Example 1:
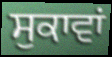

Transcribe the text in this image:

ਸੁਕਾਵਾਂ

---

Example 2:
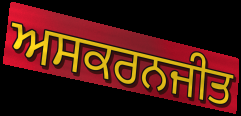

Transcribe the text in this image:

ਅਸਕਰਨਜੀਤ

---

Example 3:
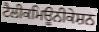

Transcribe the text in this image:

ਟੈਲੀਕਮਿਊਨੀਕੇਸ਼ਨ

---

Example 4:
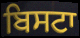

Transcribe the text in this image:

ਬਿਸਟਾ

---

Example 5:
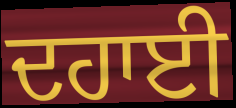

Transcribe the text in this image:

ਦਹਾਈ